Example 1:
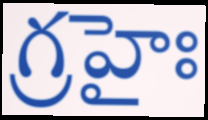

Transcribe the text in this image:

గ్రహైః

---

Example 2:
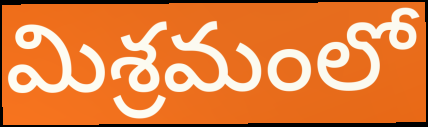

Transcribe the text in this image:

మిశ్రమంలో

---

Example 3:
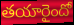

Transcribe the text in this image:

తయారైందో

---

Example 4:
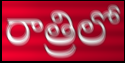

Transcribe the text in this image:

రాత్రిలో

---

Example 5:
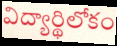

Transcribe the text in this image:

విద్యార్థిలోకం